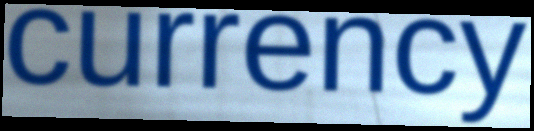
currency